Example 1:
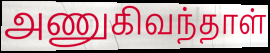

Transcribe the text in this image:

அணுகிவந்தாள்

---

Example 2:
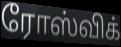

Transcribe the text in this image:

ரோஸ்விக்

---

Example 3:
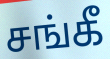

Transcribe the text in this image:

சங்கீ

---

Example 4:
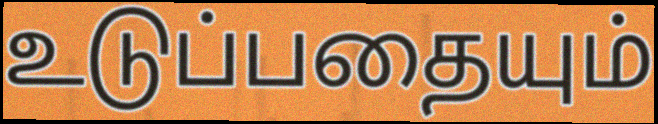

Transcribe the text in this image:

உடுப்பதையும்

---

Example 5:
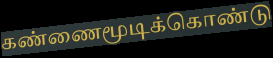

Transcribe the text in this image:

கண்ணைமூடிக்கொண்டு